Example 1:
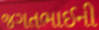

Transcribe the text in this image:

જગતભાઈની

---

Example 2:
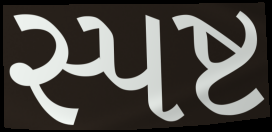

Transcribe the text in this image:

સ્પષ્ટ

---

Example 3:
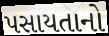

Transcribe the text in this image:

પસાયતાનો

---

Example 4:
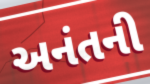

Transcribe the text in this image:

અનંતની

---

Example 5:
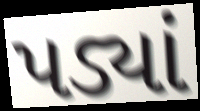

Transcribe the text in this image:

પડ્યાં